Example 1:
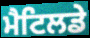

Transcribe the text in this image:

ਮੈਟਿਲਡੇ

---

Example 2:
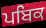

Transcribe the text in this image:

ਪਬਿਕ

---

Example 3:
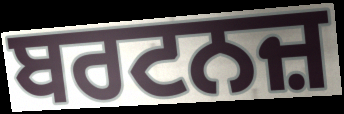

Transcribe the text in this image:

ਬਰਟਨਜ਼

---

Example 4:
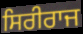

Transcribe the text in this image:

ਸਿਰੀਰਾਜ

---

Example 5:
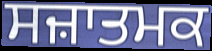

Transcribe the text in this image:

ਸਜ਼ਾਤਮਕ